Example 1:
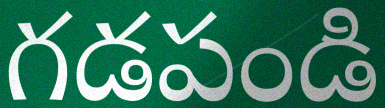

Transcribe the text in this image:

గడపండి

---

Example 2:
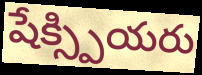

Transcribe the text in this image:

షేక్స్పియరు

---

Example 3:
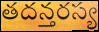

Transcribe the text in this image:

తదన్తరస్య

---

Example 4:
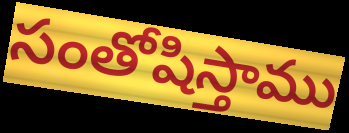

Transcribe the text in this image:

సంతోషిస్తాము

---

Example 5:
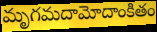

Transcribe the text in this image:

మృగమదామోదాంకితం